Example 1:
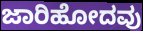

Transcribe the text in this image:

ಜಾರಿಹೋದವು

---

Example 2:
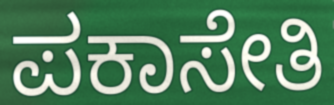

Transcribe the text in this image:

ಪಕಾಸೇತಿ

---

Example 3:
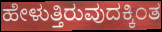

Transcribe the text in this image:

ಹೇಳುತ್ತಿರುವುದಕ್ಕಿಂತ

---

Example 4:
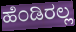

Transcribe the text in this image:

ಹೆಂಡಿರಲ್ಲ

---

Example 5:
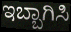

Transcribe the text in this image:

ಇಬ್ಬಾಗಿಸಿ